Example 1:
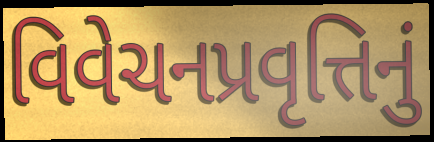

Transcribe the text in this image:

વિવેચનપ્રવૃત્તિનું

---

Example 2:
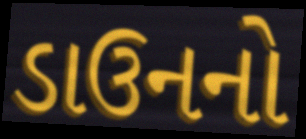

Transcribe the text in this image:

ડાઉનનો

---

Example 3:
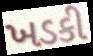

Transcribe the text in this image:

ખડકી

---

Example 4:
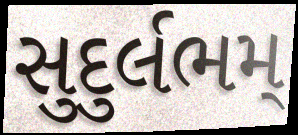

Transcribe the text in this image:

સુદુર્લભમ્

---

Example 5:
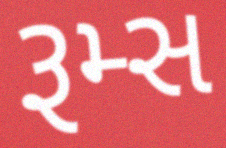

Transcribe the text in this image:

રૂમ્સ